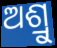
ଅଶ୍ରୁ